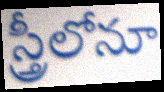
స్త్రీలోనూ